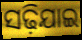
ସଢ଼ିଯାଇ